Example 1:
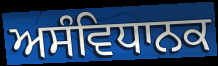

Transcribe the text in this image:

ਅਸੰਵਿਧਾਨਕ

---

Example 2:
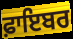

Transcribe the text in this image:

ਫ਼ਾਇਬਰ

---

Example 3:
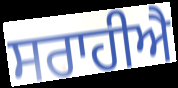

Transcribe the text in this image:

ਸਰਾਹੀਐ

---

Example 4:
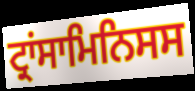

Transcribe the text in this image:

ਟ੍ਰਾਂਸਾਮਿਨਿਸਸ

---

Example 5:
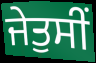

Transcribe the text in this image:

ਜੇਤੁਸੀਂ